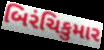
બિરંચિકુમાર